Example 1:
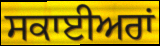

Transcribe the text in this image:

ਸਕਾਈਅਰਾਂ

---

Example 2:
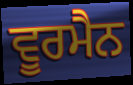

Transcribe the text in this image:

ਵੂਰਮੈਨ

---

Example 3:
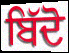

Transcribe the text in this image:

ਬਿੱਦੋ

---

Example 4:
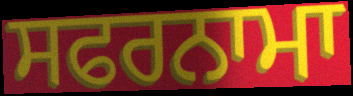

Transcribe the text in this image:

ਸਫਰਨਾਮਾ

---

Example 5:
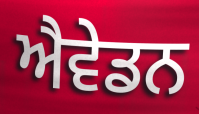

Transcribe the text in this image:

ਐਵੇਡਨ